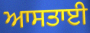
ਆਸਤਾਈ